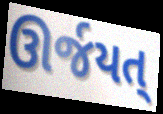
ઊર્જયત્